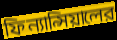
ফিন্যান্সিয়ালের